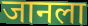
जानला